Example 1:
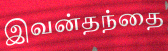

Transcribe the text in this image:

இவன்தந்தை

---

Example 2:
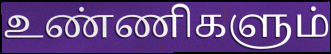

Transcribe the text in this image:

உண்ணிகளும்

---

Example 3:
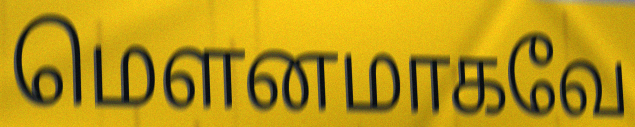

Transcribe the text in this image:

மெளனமாகவே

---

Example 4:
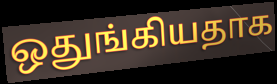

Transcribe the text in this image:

ஒதுங்கியதாக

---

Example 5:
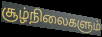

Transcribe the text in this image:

சூழ்நிலைகளும்